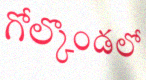
గోల్కొండలో